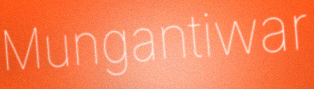
Mungantiwar